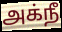
அக்நீ